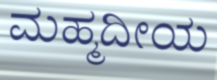
ಮಹ್ಮದೀಯ